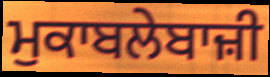
ਮੁਕਾਬਲੇਬਾਜ਼ੀ